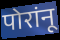
पोरांनू